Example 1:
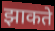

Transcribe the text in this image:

झाकते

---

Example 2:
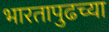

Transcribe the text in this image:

भारतापुढच्या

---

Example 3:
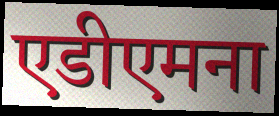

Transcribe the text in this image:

एडीएमना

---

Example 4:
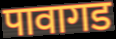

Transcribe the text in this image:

पावागड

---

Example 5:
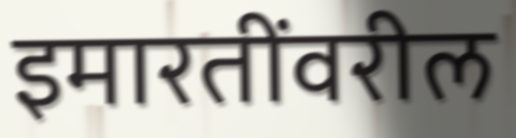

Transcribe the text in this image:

इमारतींवरील